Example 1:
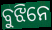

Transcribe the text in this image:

ବୁଝିନେ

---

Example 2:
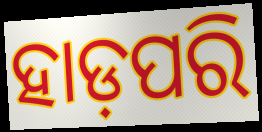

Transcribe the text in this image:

ହାଡ଼ପରି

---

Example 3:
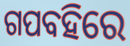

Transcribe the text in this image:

ଗପବହିରେ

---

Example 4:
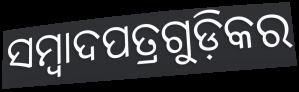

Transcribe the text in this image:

ସମ୍ୱାଦପତ୍ରଗୁଡ଼ିକର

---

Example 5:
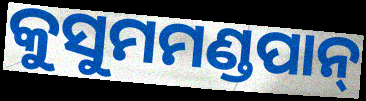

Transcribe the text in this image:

କୁସୁମମଣ୍ଡପାନ୍